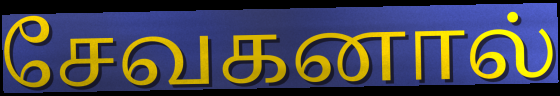
சேவகனால்